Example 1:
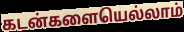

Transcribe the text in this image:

கடன்களையெல்லாம்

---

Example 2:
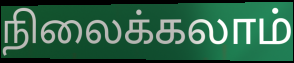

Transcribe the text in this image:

நிலைக்கலாம்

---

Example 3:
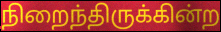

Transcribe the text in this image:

நிறைந்திருக்கின்ற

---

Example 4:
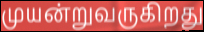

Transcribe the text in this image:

முயன்றுவருகிறது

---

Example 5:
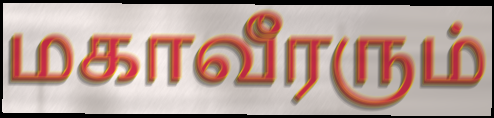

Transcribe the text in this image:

மகாவீரரும்